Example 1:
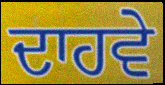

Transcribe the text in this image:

ਦਾਹਵੇ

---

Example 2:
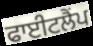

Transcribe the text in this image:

ਫਾਈਟਲੈਂਪ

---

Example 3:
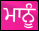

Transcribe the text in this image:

ਮਾਨੂੰ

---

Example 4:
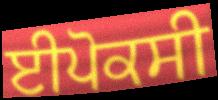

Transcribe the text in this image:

ਈਪੋਕਸੀ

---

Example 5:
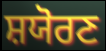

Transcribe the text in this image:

ਸ਼ਯੋਰਣ